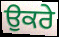
ਉਕਰੇ